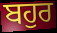
ਬਹੁਰ